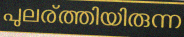
പുലര്ത്തിയിരുന്ന